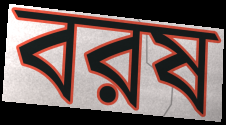
বরষ